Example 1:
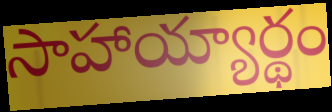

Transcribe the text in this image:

సాహాయ్యార్థం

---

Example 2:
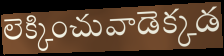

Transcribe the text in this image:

లెక్కించువాడెక్కడ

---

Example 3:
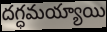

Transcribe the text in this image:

దగ్ధమయ్యాయి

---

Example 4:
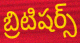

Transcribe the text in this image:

బ్రిటిషర్స్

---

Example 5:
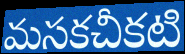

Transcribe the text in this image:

మసకచీకటి